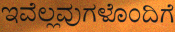
ಇವೆಲ್ಲವುಗಳೊಂದಿಗೆ